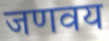
जणवय